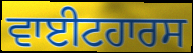
ਵਾਈਟਹਾਰਸ